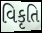
વિકૃતિ